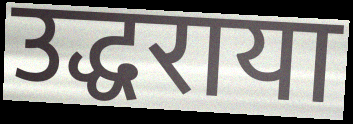
उद्धराया